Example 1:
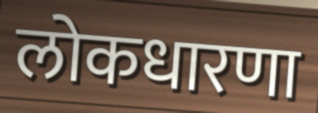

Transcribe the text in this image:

लोकधारणा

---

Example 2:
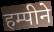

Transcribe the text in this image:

हम्पीने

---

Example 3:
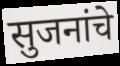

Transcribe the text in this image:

सुजनांचे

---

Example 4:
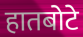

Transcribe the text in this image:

हातबोटे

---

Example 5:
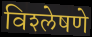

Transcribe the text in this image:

विश्लेषणे